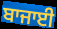
ਬਾਜਾਈ